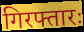
गिरफ्तारः